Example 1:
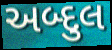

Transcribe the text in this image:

અબ્દુલ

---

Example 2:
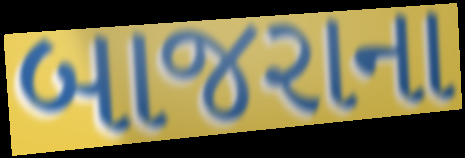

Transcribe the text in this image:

બાજરાના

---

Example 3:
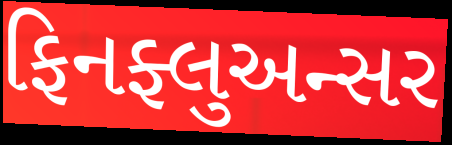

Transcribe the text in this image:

ફિનફ્લુઅન્સર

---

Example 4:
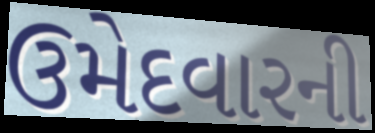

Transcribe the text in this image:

ઉમેદવારની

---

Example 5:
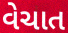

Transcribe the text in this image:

વેચાત